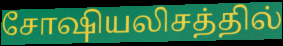
சோஷியலிசத்தில்